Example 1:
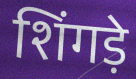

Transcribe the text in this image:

शिंगड़े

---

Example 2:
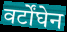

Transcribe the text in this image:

वर्टोंघेन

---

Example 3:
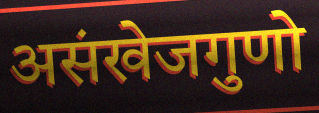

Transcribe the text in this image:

असंखेजगुणो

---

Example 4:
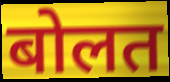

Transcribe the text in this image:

बोलत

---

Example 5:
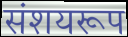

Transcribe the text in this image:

संशयरूप